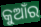
କୁଆଁର